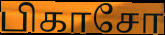
பிகாசோ